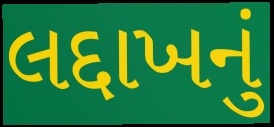
લદ્દાખનું